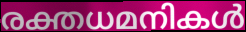
രക്തധമനികൾ